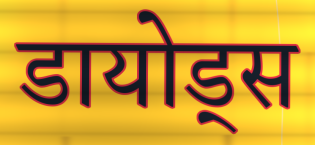
डायोड्स